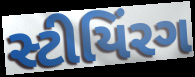
સ્ટીયિંરગ